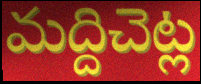
మద్దిచెట్ల